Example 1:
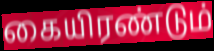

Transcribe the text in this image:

கையிரண்டும்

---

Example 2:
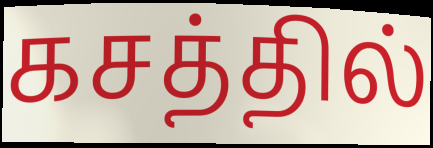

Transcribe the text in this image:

கசத்தில்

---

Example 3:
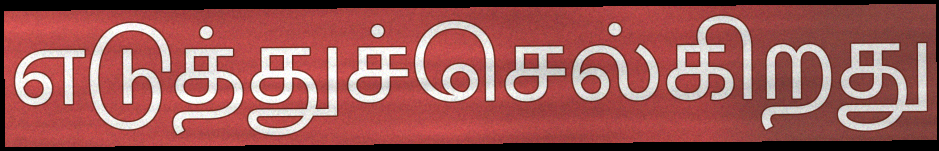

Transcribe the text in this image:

எடுத்துச்செல்கிறது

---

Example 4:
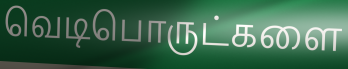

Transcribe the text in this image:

வெடிபொருட்களை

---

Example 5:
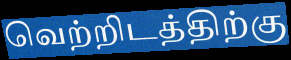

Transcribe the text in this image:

வெற்றிடத்திற்கு